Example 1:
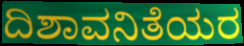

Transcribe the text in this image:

ದಿಶಾವನಿತೆಯರ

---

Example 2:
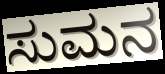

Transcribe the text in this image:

ಸುಮನ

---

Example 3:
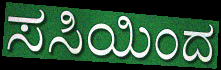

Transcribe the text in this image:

ಸಸಿಯಿಂದ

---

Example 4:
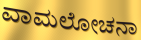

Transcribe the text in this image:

ವಾಮಲೋಚನಾ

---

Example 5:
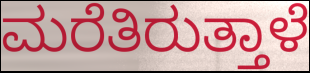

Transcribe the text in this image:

ಮರೆತಿರುತ್ತಾಳೆ